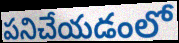
పనిచేయడంలో